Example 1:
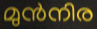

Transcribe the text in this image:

മുൻനിര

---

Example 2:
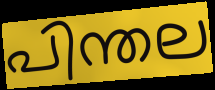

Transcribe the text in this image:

പിന്തല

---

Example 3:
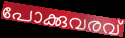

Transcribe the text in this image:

പോക്കുവരവ്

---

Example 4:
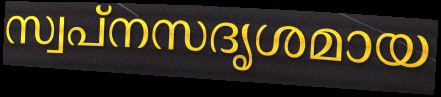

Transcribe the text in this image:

സ്വപ്നസദൃശമായ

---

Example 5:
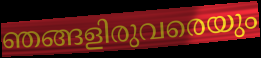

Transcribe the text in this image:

ഞങ്ങളിരുവരെയും